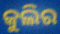
କୁଲିର